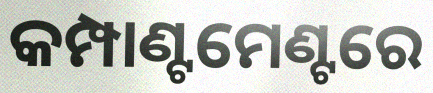
କମ୍ପାଣ୍ଟମେଣ୍ଟରେ